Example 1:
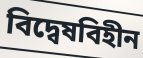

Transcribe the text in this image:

বিদ্বেষবিহীন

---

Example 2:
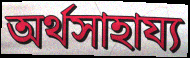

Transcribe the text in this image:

অর্থসাহায্য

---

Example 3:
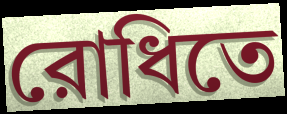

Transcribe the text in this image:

রোধিতে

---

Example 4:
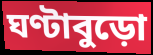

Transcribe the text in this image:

ঘণ্টাবুড়ো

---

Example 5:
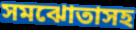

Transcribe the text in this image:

সমঝোতাসহ